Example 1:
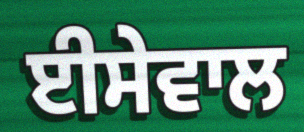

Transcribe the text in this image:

ਈਸੇਵਾਲ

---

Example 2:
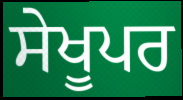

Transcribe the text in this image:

ਸੇਖੂਪਰ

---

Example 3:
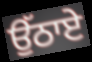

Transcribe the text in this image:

ਉੱਠਾਏ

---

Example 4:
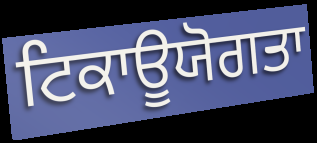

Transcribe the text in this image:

ਟਿਕਾਊਯੋਗਤਾ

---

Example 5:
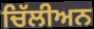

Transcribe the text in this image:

ਚਿੱਲੀਅਨ